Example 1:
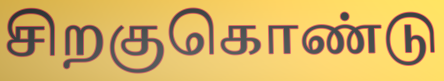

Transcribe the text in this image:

சிறகுகொண்டு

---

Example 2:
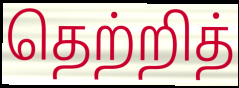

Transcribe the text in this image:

தெற்றித்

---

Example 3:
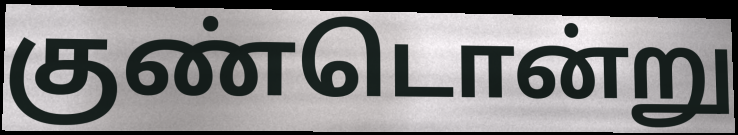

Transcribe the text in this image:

குண்டொன்று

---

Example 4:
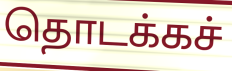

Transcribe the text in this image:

தொடக்கச்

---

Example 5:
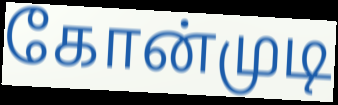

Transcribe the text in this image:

கோன்முடி